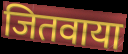
जितवाया